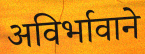
अविर्भावाने